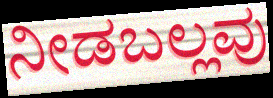
ನೀಡಬಲ್ಲವು